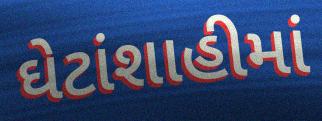
ઘેટાંશાહીમાં